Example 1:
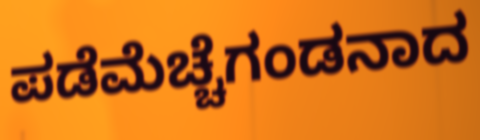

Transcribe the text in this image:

ಪಡೆಮೆಚ್ಚೆಗಂಡನಾದ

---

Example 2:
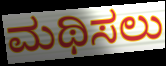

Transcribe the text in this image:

ಮಥಿಸಲು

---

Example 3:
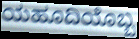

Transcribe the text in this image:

ಯಹೂದಿಯೊಬ್ಬ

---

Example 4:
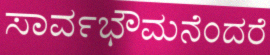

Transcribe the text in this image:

ಸಾರ್ವಭೌಮನೆಂದರೆ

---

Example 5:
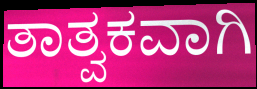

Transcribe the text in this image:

ತಾತ್ವಕವಾಗಿ